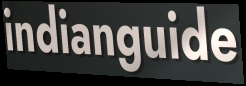
indianguide